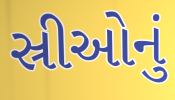
સ્રીઓનું